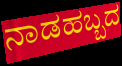
ನಾಡಹಬ್ಬದ